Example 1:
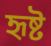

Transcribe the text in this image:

হৃষ্ট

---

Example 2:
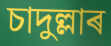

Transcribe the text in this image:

চাদুল্লাৰ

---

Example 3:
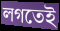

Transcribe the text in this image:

লগতেই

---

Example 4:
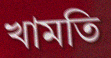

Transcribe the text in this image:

খামতি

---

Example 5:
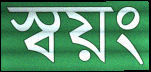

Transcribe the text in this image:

স্বয়ং